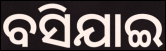
ବସିଯାଇ